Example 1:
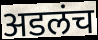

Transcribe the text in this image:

अडलंच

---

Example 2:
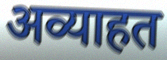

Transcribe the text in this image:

अव्याहत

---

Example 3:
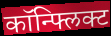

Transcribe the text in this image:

कॉन्फ्लिक्ट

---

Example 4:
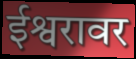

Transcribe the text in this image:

ईश्वरावर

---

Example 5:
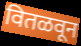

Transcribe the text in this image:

वितळवून